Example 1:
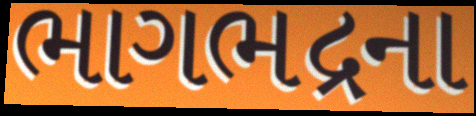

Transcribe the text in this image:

ભાગભદ્રના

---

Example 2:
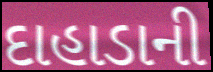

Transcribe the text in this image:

દાહાડાની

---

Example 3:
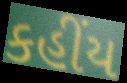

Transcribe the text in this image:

કહીંય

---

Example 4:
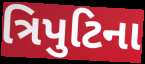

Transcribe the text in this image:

ત્રિપુટિના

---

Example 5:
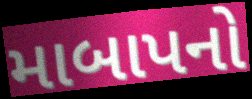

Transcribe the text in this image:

માબાપનો